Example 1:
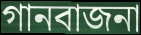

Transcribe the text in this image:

গানবাজনা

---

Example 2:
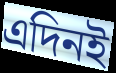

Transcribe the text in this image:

এদিনই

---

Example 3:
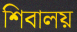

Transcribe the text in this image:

শিবালয়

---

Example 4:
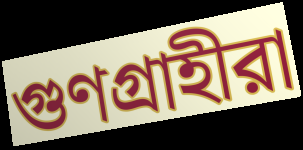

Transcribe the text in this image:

গুণগ্রাহীরা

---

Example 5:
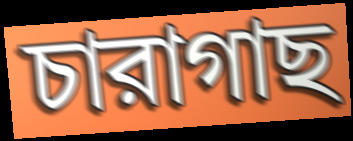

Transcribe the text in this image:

চারাগাছ